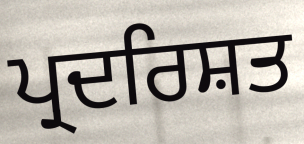
ਪ੍ਰਦਰਿਸ਼ਤ